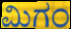
ಮಿಗಂ